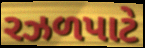
રઝળપાટે